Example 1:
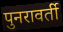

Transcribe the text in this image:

पुनरावर्ती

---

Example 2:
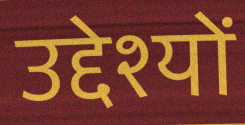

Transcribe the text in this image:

उद्देश्यों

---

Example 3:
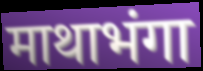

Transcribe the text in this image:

माथाभंगा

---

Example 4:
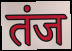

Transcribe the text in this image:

तंज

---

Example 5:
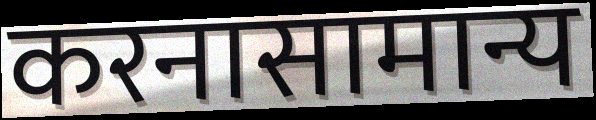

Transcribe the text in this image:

करनासामान्य